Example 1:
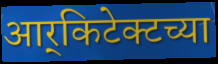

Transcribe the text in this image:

आर्किटेक्टच्या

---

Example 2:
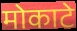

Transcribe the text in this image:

मोकाटे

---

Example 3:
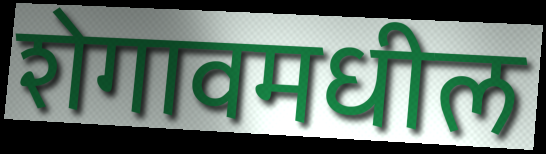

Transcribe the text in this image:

शेगावमधील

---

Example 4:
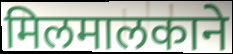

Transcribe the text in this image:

मिलमालकाने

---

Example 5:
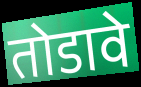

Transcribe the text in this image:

तोडावे